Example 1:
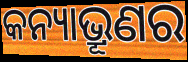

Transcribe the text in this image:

କନ୍ୟାଭ୍ରୂଣର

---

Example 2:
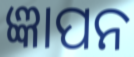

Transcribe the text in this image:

ଜ୍ଞାପନ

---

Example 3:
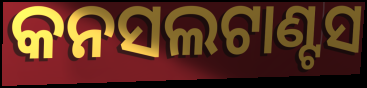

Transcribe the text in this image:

କନସଲଟାଣ୍ଟସ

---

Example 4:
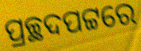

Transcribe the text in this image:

ପ୍ରଚ୍ଛଦପଟ୍ଟରେ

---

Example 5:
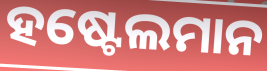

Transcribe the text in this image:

ହଷ୍ଟେଲମାନ